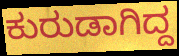
ಕುರುಡಾಗಿದ್ದ